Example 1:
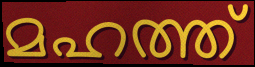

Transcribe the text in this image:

മഹത്ത്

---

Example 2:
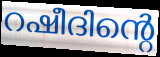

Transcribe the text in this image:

റഷീദിന്റെ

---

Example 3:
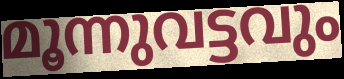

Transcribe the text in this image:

മൂന്നുവട്ടവും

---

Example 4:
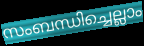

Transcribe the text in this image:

സംബന്ധിച്ചെല്ലാം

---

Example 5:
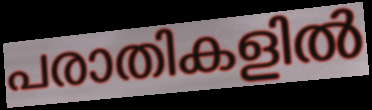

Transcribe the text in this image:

പരാതികളിൽ